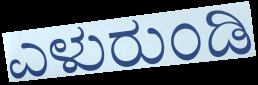
ಎಳುರುಂಡಿ